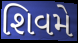
શિવમે